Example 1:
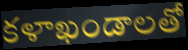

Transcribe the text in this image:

కళాఖండాలతో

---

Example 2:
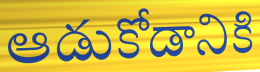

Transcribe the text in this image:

ఆడుకోడానికి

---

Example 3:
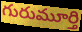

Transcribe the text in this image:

గురుమూర్తి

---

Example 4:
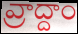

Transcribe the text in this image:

వ్రాద్దాం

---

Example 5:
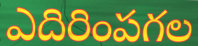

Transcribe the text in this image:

ఎదిరింపగల